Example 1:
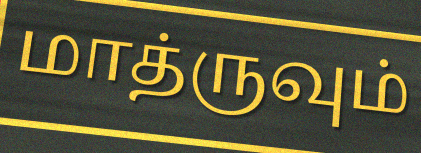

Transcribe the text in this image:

மாத்ருவும்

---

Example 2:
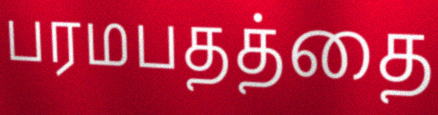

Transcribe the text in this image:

பரமபதத்தை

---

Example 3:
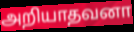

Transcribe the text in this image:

அறியாதவனா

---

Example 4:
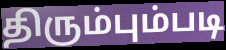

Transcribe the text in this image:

திரும்பும்படி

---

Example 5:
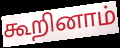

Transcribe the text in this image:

கூறினாம்